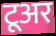
टूअर